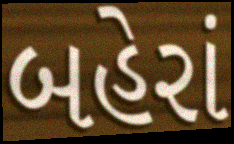
બહેરાં